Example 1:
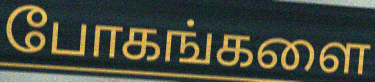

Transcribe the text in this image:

போகங்களை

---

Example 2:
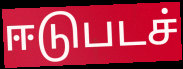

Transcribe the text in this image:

ஈடுபடச்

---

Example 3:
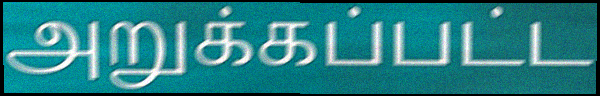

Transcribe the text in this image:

அறுக்கப்பட்ட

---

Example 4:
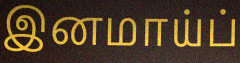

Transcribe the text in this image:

இனமாய்ப்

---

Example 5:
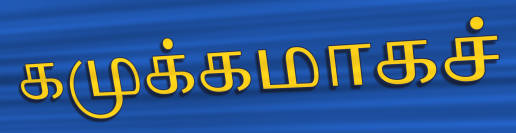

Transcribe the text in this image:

கமுக்கமாகச்